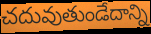
చదువుతుండేదాన్ని